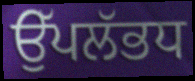
ਉੱਪਲੱਭਧ